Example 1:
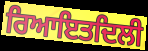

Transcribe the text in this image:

ਰਿਆਇਤਦਿਲੀ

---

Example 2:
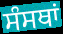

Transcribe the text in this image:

ਸੰਸਥਾਂ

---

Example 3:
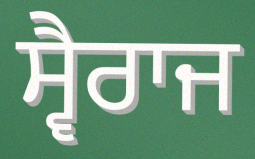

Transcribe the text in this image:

ਸ੍ਵੈਰਾਜ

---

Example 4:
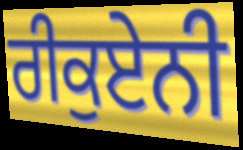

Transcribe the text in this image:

ਰੀਕੁਏਨੀ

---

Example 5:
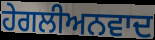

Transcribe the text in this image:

ਹੇਗਲੀਅਨਵਾਦ